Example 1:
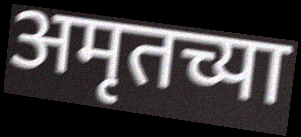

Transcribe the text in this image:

अमृतच्या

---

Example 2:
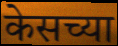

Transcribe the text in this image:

केसच्या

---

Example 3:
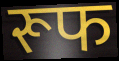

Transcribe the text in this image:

रूफ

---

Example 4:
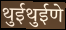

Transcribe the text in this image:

थुईथुईणे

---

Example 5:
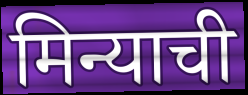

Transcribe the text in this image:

मिन्याची